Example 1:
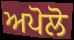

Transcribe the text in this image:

ਅਪੋਲੋ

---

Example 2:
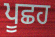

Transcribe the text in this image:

ਪੂਛਹ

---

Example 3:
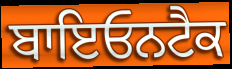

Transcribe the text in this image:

ਬਾਇਓਨਟੈਕ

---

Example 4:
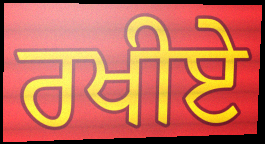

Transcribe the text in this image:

ਰਖੀਏ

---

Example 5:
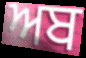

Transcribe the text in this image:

ਅਬ